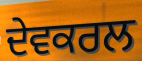
ਦੇਵਕਰਲ